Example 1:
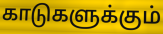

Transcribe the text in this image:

காடுகளுக்கும்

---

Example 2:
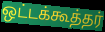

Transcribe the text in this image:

ஒட்டக்கூத்தர்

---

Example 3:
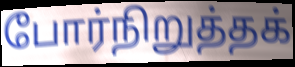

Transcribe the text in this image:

போர்நிறுத்தக்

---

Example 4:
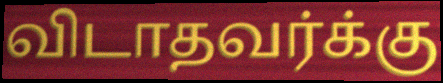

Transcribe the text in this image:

விடாதவர்க்கு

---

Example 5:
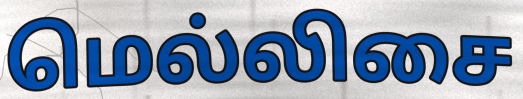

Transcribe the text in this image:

மெல்லிசை